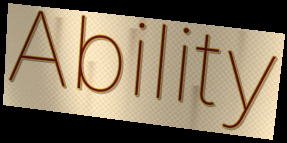
Ability